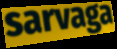
sarvaga